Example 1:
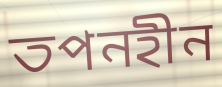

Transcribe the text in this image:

তপনহীন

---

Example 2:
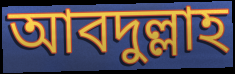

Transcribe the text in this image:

আবদুল্লাহ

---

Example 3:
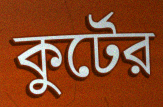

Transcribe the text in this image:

কুর্টের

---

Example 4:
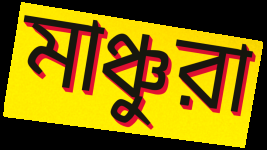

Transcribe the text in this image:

মাঞ্চুরা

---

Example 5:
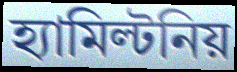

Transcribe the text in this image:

হ্যামিল্টনিয়